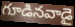
గూడినవాడై